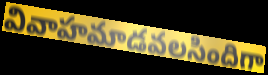
వివాహమాడవలసిందిగా